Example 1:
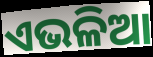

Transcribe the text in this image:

ଏଭଳିଆ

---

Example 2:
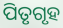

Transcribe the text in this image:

ପିତୃଗୃହ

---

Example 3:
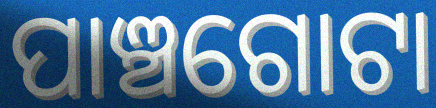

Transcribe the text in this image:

ପାଞ୍ଚଗୋଟା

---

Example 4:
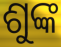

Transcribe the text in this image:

ଶୁଙ୍କ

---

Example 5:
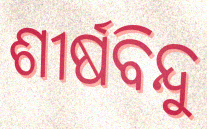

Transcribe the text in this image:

ଶୀର୍ଷବିନ୍ଦୁ